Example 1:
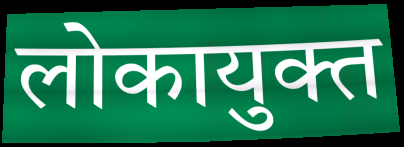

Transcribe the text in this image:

लोकायुक्त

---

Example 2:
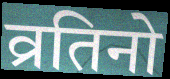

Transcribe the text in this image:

व्रतिनो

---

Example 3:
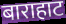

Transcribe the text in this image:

बाराहाट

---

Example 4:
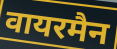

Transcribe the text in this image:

वायरमैन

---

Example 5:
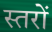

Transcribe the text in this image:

स्तरों